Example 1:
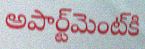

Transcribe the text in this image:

అపార్ట్‌మెంట్‌కి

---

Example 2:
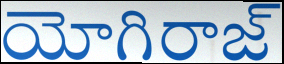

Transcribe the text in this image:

యోగిరాజ్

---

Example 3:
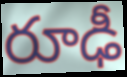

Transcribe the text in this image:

రూఢీ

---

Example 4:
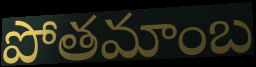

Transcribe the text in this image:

పోతమాంబ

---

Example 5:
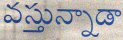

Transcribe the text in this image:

వస్తున్నాడా